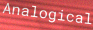
Analogical